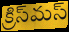
క్రిస్‌మస్